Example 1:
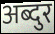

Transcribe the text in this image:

अब्दुर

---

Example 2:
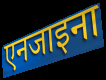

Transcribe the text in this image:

एनजाइना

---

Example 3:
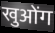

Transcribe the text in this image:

खुओंग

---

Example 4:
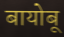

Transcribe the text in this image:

बायोबू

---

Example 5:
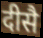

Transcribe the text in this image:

दीसै